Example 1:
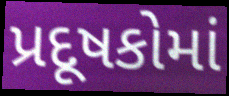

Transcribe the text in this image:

પ્રદૂષકોમાં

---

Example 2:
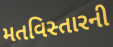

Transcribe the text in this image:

મતવિસ્તારની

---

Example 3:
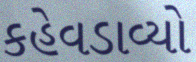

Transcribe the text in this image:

કહેવડાવ્યો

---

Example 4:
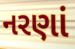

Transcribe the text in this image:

નરણાં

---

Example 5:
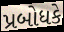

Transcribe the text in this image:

પ્રબોધકે